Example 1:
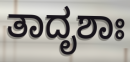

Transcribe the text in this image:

ತಾದೃಶಾಃ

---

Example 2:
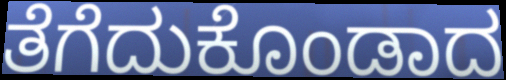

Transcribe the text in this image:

ತೆಗೆದುಕೊಂಡಾದ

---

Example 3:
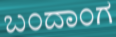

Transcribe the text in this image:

ಬಂದಾಂಗ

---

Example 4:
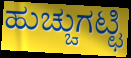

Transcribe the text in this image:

ಹುಚ್ಚುಗಟ್ಟಿ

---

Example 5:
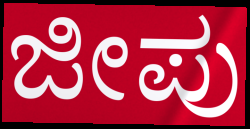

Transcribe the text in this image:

ಜೀಪು